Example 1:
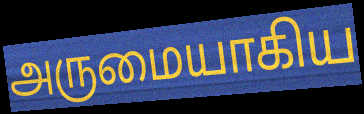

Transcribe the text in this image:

அருமையாகிய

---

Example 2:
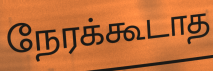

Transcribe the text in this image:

நேரக்கூடாத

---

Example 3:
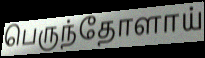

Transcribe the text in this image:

பெருந்தோளாய்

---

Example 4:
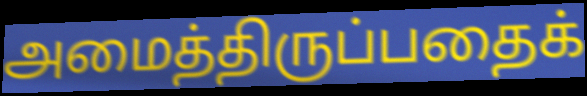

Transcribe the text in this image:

அமைத்திருப்பதைக்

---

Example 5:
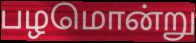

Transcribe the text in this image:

பழமொன்று